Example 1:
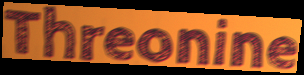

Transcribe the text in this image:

Threonine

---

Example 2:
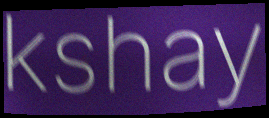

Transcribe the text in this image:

kshay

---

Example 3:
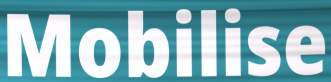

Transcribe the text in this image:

Mobilise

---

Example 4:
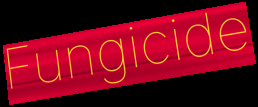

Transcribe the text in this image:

Fungicide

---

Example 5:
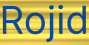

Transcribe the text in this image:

Rojid